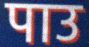
पाउ